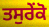
ਤਸੁਰੇਂਕੋ